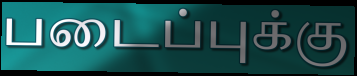
படைப்புக்கு